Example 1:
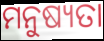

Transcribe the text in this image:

ମନୁଷ୍ୟତା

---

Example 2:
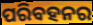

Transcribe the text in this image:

ପରିବହନର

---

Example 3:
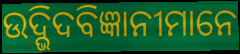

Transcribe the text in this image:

ଉଦ୍ଭିଦବିଜ୍ଞାନୀମାନେ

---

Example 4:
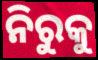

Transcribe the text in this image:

ନିରୁକୁ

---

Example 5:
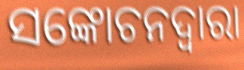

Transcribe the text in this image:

ସଙ୍କୋଚନଦ୍ୱାରା